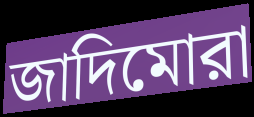
জাদিমোরা